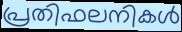
പ്രതിഫലനികൾ